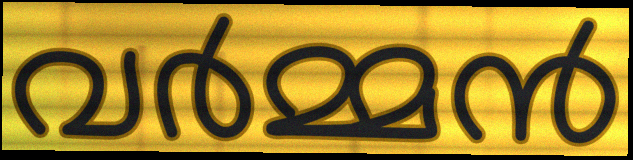
വർമ്മൻ